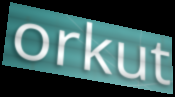
orkut